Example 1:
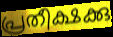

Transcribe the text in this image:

പ്രതീക്ഷക്കു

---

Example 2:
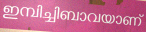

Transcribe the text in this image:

ഇമ്പിച്ചിബാവയാണ്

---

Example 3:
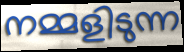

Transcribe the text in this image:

നമ്മളിടുന്ന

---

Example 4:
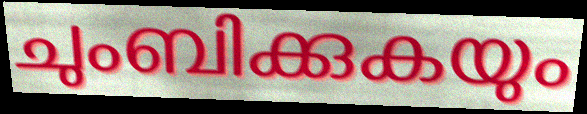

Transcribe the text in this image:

ചുംബിക്കുകയും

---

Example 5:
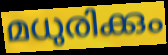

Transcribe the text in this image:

മധുരിക്കും